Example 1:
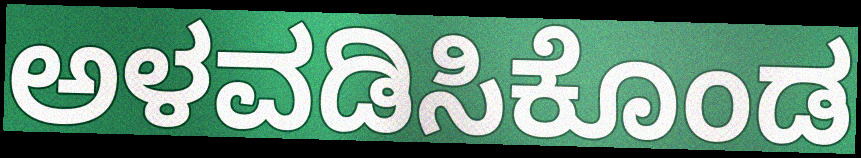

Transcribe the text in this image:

ಅಳವಡಿಸಿಕೊಂಡ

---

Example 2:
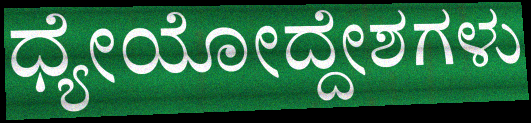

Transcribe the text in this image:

ಧ್ಯೇಯೋದ್ದೇಶಗಳು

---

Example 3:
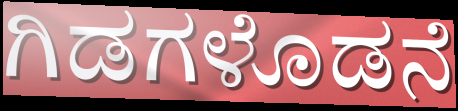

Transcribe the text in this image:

ಗಿಡಗಳೊಡನೆ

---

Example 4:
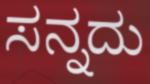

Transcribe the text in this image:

ಸನ್ನದು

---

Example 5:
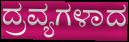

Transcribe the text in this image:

ದ್ರವ್ಯಗಳಾದ